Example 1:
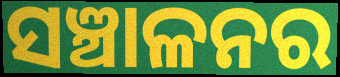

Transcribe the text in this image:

ସଞ୍ଚାଳନର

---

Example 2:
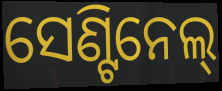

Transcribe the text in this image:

ସେଣ୍ଟିନେଲ୍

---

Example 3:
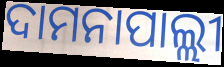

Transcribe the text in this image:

ଦାମନାପାଲ୍ଲୀ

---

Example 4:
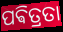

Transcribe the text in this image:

ପଵିତ୍ରତା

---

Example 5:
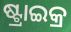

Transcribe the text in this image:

ଷ୍ଟ୍ରାଇକ୍ର